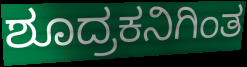
ಶೂದ್ರಕನಿಗಿಂತ